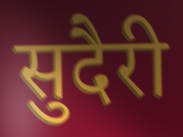
सुदैरी